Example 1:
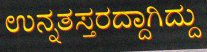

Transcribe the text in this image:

ಉನ್ನತಸ್ತರದ್ದಾಗಿದ್ದು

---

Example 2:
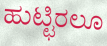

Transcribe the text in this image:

ಹುಟ್ಟಿರಲೂ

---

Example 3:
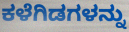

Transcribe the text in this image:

ಕಳೆಗಿಡಗಳನ್ನು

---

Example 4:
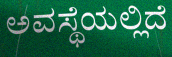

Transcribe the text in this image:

ಅವಸ್ಥೆಯಲ್ಲಿದೆ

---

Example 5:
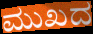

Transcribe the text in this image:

ಮುಖದ